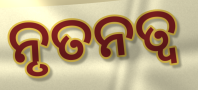
ନୃତନତ୍ୱ